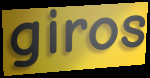
giros